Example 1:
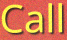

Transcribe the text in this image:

Call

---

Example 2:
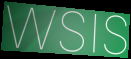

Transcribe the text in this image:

WSIS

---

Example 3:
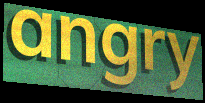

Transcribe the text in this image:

angry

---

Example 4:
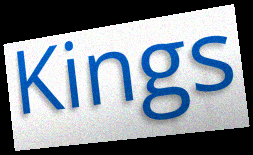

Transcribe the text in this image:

Kings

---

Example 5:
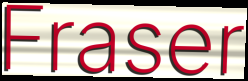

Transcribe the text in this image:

Fraser